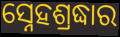
ସ୍ନେହଶ୍ରଦ୍ଧାର